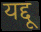
यद्दू